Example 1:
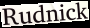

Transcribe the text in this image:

Rudnick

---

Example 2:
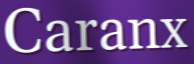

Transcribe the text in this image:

Caranx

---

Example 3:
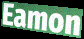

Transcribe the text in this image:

Eamon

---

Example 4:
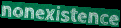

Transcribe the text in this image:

nonexistence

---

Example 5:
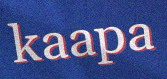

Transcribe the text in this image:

kaapa